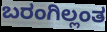
ಬರಂಗಿಲ್ಲಂತ